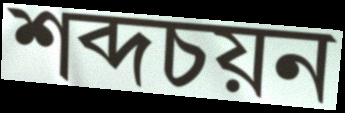
শব্দচয়ন